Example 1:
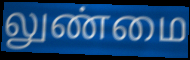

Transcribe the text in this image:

லுண்மை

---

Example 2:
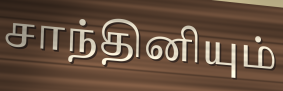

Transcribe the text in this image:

சாந்தினியும்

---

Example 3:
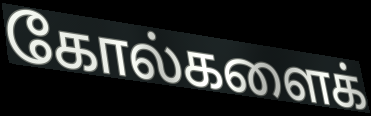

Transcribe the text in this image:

கோல்களைக்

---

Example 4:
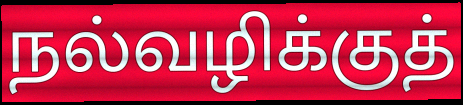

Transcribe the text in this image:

நல்வழிக்குத்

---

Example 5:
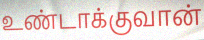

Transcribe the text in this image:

உண்டாக்குவான்